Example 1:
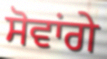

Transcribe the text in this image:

ਸੋਵਾਂਗੇ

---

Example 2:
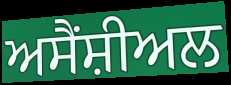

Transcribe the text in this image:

ਅਸੈਂਸ਼ੀਅਲ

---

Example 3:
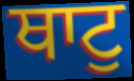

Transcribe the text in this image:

ਥਾਟੁ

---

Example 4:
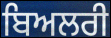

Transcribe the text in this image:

ਬਿਅਲਰੀ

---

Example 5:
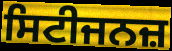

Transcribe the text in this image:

ਸਿਟੀਜਨਜ਼